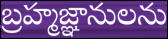
బ్రహ్మజ్ఞానులను